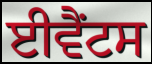
ਈਵੈਂਟਸ